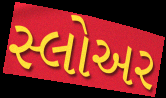
સ્લોઅર